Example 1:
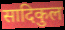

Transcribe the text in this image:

सादिकुल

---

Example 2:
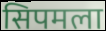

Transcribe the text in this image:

सिपमला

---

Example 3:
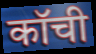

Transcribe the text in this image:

कॉची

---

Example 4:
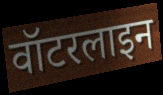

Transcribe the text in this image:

वॉटरलाइन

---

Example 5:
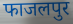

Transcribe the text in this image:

फाजलपुर